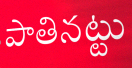
పాతినట్టు